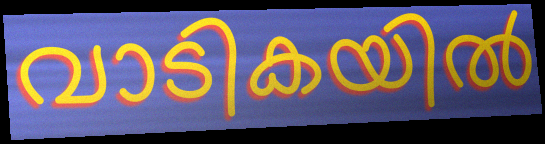
വാടികയിൽ